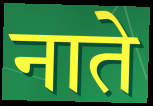
नाते